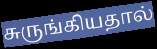
சுருங்கியதால்